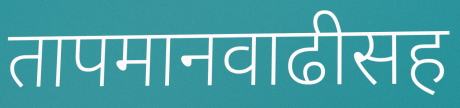
तापमानवाढीसह